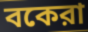
বকেরা